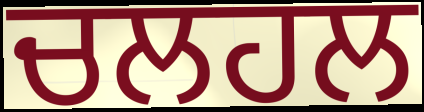
ਚਲਹਲ